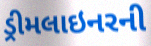
ડ્રીમલાઇનરની